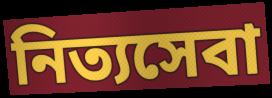
নিত্যসেবা